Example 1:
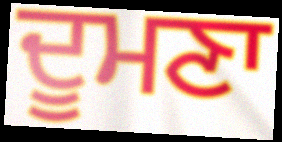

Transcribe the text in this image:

ਦੂਮਣਾ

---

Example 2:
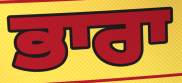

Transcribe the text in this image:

ਭਾਰਾ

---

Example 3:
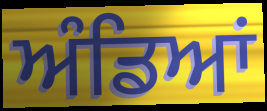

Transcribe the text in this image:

ਅੰਡਿਆਂ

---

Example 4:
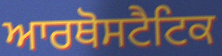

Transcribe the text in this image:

ਆਰਥੋਸਟੈਟਿਕ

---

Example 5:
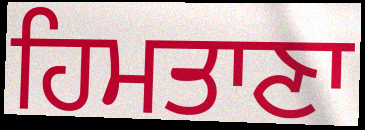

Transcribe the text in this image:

ਹਿਮਤਾਣਾ